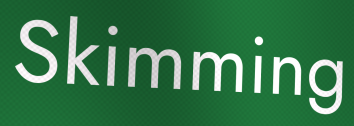
Skimming